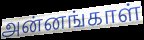
அன்னங்காள்